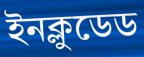
ইনক্লুডেড